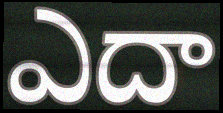
ఎదా